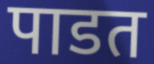
पाडत